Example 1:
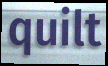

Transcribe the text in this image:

quilt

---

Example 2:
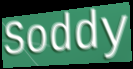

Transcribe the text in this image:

Soddy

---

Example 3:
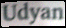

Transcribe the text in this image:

Udyan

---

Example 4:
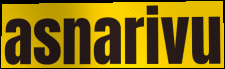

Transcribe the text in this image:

asnarivu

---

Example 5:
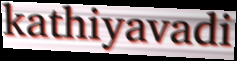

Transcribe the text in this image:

kathiyavadi